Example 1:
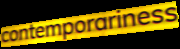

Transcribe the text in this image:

contemporariness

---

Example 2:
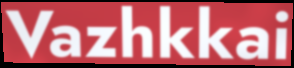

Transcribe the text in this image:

Vazhkkai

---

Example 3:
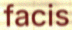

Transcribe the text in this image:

facis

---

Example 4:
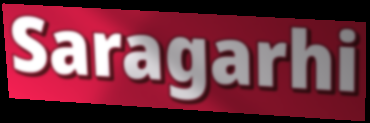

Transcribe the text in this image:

Saragarhi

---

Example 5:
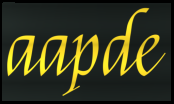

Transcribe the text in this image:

aapde